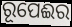
ରୂପେଈର